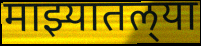
माझ्यातल्या